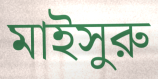
মাইসুরু